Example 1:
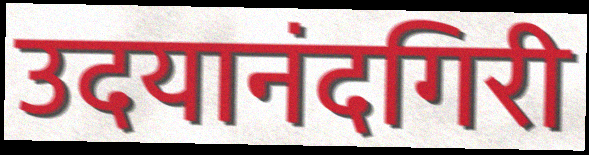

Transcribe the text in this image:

उदयानंदगिरी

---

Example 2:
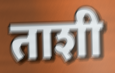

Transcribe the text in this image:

ताशी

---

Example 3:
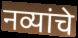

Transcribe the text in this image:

नव्यांचे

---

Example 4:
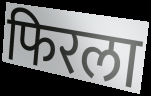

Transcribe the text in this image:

फिरला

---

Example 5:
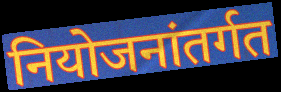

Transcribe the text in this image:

नियोजनांतर्गत